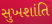
સુખશાંતિ